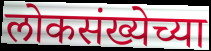
लोकसंख्येच्या